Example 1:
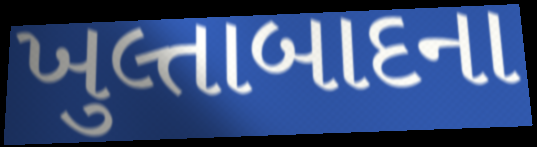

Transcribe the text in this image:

ખુલ્તાબાદના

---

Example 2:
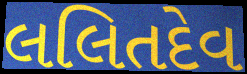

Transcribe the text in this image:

લલિતદેવ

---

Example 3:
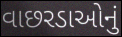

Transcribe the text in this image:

વાછરડાઓનું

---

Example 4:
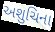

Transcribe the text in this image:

અશુચિના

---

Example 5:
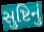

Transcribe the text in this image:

સુષ્ટિનું